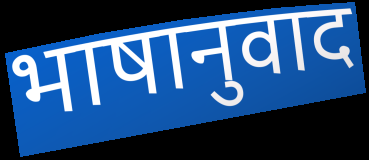
भाषानुवाद